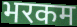
भरकम